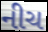
નીચ